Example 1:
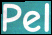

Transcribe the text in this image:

Pel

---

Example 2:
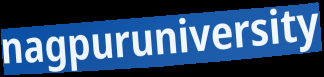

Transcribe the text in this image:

nagpuruniversity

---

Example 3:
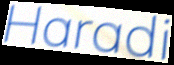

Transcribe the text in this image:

Haradi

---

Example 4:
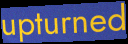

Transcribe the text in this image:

upturned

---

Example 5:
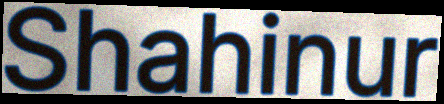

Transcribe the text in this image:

Shahinur